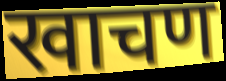
खाचण